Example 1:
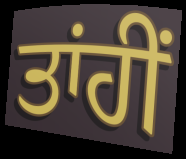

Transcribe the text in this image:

ਤਾਂਹੀਂ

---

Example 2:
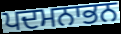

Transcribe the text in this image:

ਪਦਮਨਾਭਨ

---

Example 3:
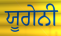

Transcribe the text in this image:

ਯੂਗੇਨੀ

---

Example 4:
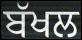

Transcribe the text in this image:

ਬੱਖਲ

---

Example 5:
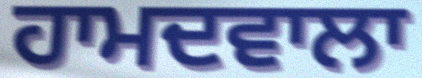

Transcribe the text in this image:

ਹਾਮਦਵਾਲਾ